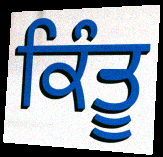
ਕਿੰਤੂ